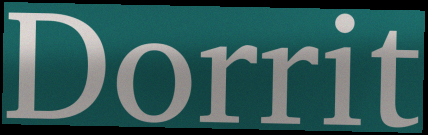
Dorrit